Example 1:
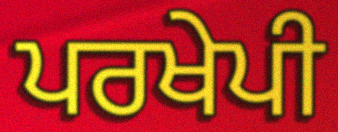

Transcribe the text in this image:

ਪਰਖੇਪੀ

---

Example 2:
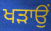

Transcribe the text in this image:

ਖੜਾਉਂ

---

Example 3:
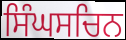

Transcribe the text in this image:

ਸਿੰਘਸਚਿਨ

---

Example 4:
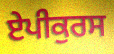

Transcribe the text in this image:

ਏਪੀਕੁਰਸ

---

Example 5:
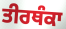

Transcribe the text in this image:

ਤੀਰਥੰਕਾ